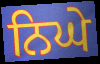
ਨਿਘੇ